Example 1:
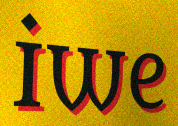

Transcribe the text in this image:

iwe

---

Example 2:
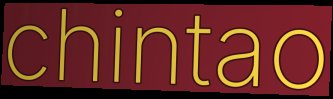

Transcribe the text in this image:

chintao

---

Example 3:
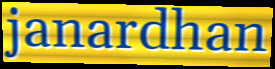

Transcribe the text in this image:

janardhan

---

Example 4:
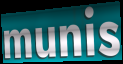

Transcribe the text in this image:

munis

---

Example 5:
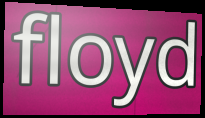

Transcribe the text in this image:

floyd